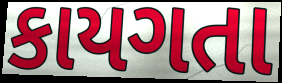
કાયગતા